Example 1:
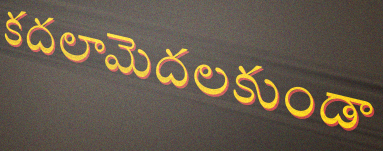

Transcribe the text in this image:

కదలామెదలకుండా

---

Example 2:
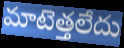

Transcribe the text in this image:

మాటెత్తలేదు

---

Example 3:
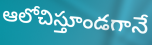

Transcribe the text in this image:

ఆలోచిస్తూండగానే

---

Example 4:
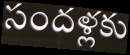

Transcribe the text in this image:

సందళ్లకు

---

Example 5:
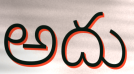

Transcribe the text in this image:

అదు